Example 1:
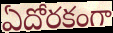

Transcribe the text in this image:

ఏదోరకంగా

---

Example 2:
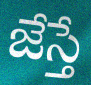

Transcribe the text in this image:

జేస్తే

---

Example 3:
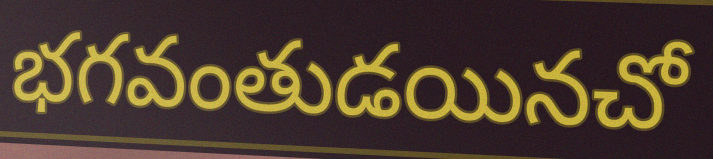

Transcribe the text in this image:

భగవంతుడయినచో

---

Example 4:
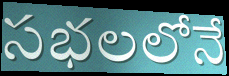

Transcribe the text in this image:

సభలలోనే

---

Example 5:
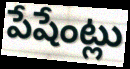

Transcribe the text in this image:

పేషేంట్లు